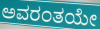
ಅವರಂತಯೇ